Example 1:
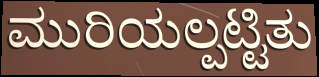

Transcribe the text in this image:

ಮುರಿಯಲ್ಪಟ್ಟಿತು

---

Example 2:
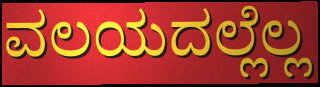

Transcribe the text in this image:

ವಲಯದಲ್ಲೆಲ್ಲ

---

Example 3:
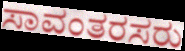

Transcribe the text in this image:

ಸಾವಂತರಸರು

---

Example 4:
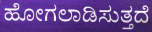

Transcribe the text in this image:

ಹೋಗಲಾಡಿಸುತ್ತದೆ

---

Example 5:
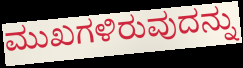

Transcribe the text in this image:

ಮುಖಗಳಿರುವುದನ್ನು